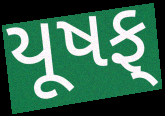
યૂષફ્